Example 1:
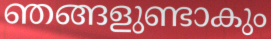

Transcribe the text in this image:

ഞങ്ങളുണ്ടാകും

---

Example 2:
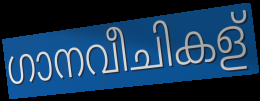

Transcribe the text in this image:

ഗാനവീചികള്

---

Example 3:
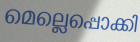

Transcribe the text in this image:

മെല്ലെപ്പൊക്കി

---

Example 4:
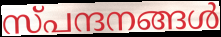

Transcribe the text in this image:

സ്പന്ദനങ്ങൾ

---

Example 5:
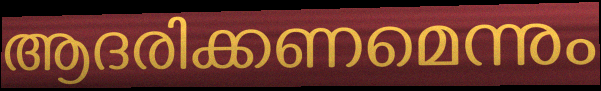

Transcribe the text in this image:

ആദരിക്കണമെന്നും